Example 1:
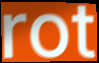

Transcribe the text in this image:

rot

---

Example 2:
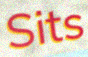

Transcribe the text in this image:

Sits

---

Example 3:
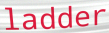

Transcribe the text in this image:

ladder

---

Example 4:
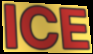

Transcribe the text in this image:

ICE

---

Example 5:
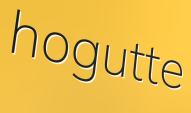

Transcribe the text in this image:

hogutte